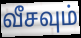
வீசவும்